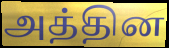
அத்தின